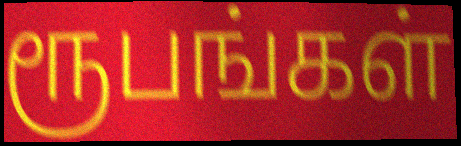
ரூபங்கள்